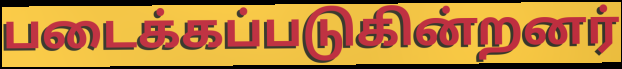
படைக்கப்படுகின்றனர்